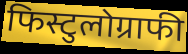
फिस्टुलोग्राफी